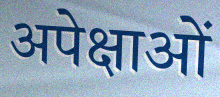
अपेक्षाओं